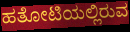
ಹತೋಟಿಯಲ್ಲಿರುವ